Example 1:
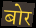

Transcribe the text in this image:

बोर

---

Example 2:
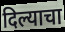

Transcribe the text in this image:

दिल्याचा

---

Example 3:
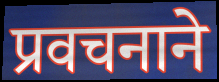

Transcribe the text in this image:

प्रवचनाने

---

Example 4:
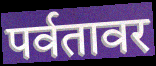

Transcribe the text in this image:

पर्वतावर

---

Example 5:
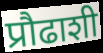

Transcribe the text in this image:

प्रौढाशी